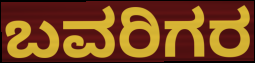
ಬವರಿಗರ